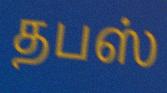
தபஸ்